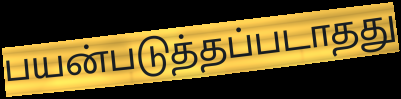
பயன்படுத்தப்படாதது